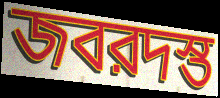
জবরদস্ত